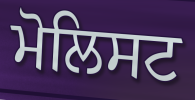
ਮੋਲਿਸਟ